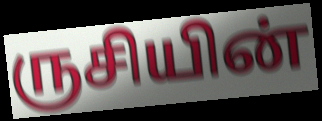
ருசியின்